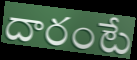
దారంటే